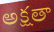
అక్షతా